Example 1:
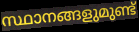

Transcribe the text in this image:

സ്ഥാനങ്ങളുമുണ്ട്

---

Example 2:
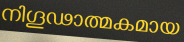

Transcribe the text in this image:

നിഗൂഢാത്മകമായ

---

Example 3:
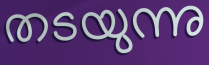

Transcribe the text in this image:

തടയുന്നു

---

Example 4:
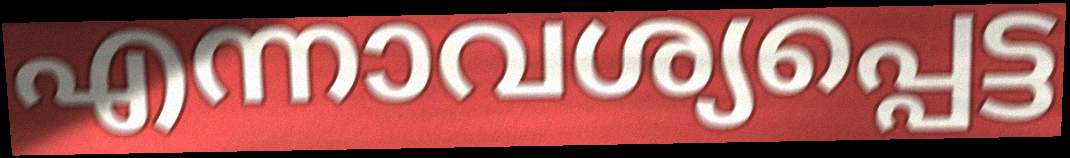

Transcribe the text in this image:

എന്നാവശ്യപ്പെട്ട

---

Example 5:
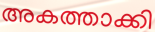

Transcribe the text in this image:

അകത്താക്കി